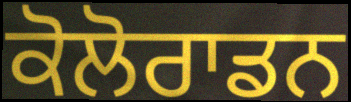
ਕੋਲੋਰਾਡਨ